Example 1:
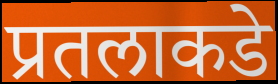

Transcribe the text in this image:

प्रतलाकडे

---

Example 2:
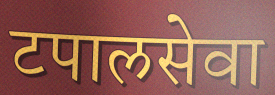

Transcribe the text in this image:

टपालसेवा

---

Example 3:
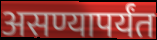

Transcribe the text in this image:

असण्यापर्यंत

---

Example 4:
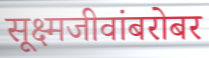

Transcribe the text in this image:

सूक्ष्मजीवांबरोबर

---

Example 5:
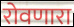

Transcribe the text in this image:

रोवणारा